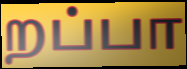
றப்பா